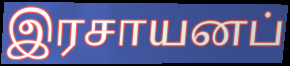
இரசாயனப்